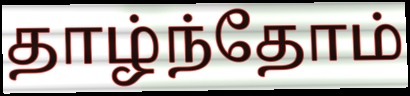
தாழ்ந்தோம்